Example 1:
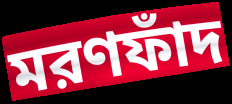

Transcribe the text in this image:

মরণফাঁদ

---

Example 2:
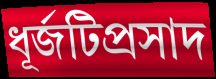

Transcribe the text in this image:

ধূর্জটিপ্রসাদ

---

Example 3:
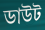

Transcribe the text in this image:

ডাউট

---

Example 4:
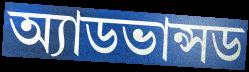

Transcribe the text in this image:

অ্যাডভান্সড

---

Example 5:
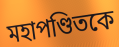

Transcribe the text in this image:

মহাপণ্ডিতকে